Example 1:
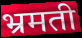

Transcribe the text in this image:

भ्रमती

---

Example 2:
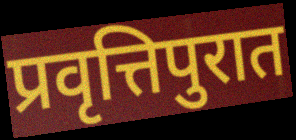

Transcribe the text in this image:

प्रवृत्तिपुरात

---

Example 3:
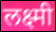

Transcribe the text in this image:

लक्ष्मी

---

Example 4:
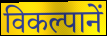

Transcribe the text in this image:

विकल्पानें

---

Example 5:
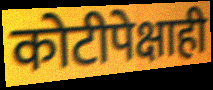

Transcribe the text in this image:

कोटीपेक्षाही